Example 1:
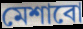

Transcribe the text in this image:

মেশাবো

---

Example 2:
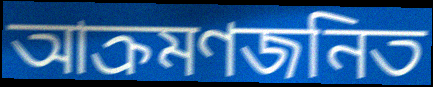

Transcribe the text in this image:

আক্রমণজনিত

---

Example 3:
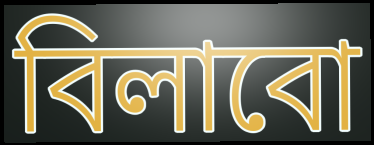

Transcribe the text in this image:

বিলাবো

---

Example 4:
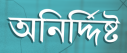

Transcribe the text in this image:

অনির্দ্দিষ্ট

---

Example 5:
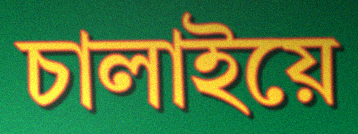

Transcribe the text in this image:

চালাইয়ে